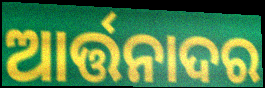
ଆର୍ତ୍ତନାଦର